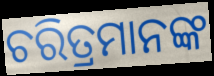
ଚରିତ୍ରମାନଙ୍କ